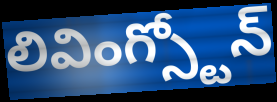
లివింగ్స్టోన్